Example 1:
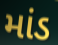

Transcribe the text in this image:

માંડ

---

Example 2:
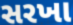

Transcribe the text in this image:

સરખા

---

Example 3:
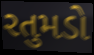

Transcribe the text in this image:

રતુમડો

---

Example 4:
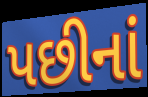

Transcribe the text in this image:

પછીનાં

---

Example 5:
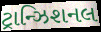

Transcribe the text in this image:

ટ્રાન્ઝિશનલ